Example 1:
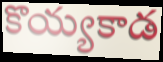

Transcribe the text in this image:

కొయ్యకాడ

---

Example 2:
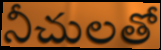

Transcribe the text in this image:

నీచులతో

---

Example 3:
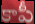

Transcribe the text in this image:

కాపీ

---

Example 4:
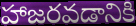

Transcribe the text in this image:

హాజరవడానికి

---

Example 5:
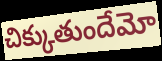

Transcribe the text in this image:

చిక్కుతుందేమో